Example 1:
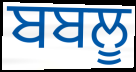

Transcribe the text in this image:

ਬਬਲੂ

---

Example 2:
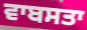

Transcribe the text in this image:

ਵਾਬਸਤਾ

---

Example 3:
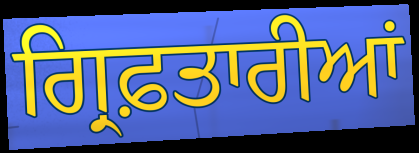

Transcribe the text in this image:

ਗ੍ਰਿਫ਼ਤਾਰੀਆਂ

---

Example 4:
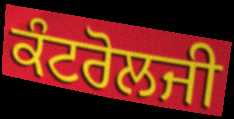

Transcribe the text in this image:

ਕੰਟਰੋਲਜੀ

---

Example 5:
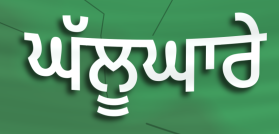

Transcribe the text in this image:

ਘੱਲੂਘਾਰੇ